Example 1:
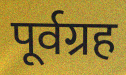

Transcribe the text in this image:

पूर्वग्रह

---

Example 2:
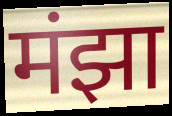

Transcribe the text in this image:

मंझा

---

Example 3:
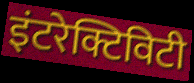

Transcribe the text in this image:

इंटरेक्टिविटी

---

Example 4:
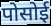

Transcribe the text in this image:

पोसोई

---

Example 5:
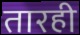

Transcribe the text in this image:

तारही